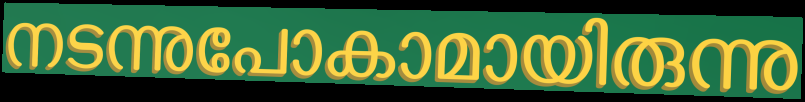
നടന്നുപോകാമായിരുന്നു